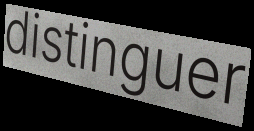
distinguer